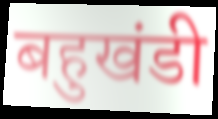
बहुखंडी